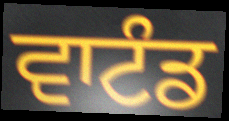
ਵਾਟੰਡ